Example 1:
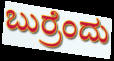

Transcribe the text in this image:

ಬುರ್ರೆಂದು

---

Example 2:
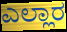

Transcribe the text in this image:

ಎಲ್ಲಾರ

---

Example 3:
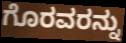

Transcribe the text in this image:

ಗೊರವರನ್ನು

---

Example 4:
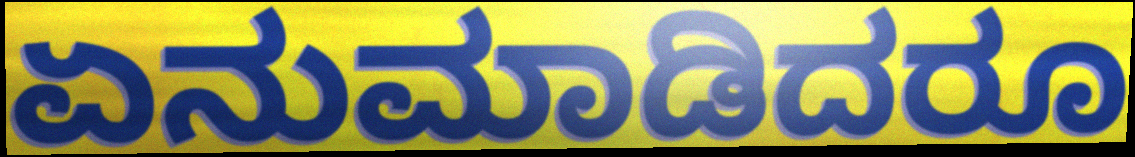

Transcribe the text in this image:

ಏನುಮಾಡಿದರೂ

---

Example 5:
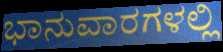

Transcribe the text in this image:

ಭಾನುವಾರಗಳಲ್ಲಿ